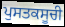
ਪੁਸਤਕਸੂਚੀ